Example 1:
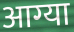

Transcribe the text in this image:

आग्या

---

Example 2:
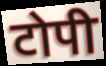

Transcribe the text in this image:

टोपी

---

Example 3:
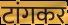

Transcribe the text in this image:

टांगकर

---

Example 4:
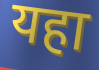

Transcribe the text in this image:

यहा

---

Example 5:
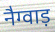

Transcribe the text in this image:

नैग्वाड़